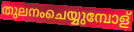
തുലനംചെയ്യുമ്പോള്